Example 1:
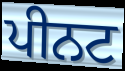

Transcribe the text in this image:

ਪੀਨਟ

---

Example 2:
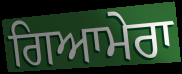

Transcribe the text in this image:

ਗਿਆਮੇਰਾ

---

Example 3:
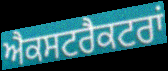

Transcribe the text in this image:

ਐਕਸਟਰੈਕਟਰਾਂ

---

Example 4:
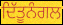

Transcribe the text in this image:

ਦਿੱਤੂਨੰਗਲ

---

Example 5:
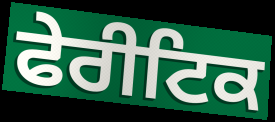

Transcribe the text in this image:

ਫੇਰੀਟਿਕ